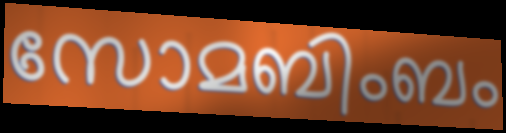
സോമബിംബം